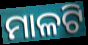
ମାଳଟି